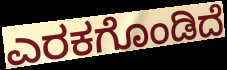
ಎರಕಗೊಂಡಿದೆ